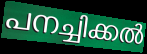
പനച്ചിക്കൽ